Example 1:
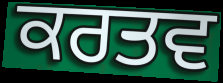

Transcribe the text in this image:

ਕਰਤਵ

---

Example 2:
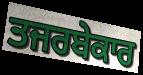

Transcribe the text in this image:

ਤਜਰਬੇਕਾਰ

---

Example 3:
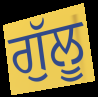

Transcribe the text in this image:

ਗੁੱਲੂ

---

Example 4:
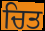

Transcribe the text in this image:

ਚਿਤ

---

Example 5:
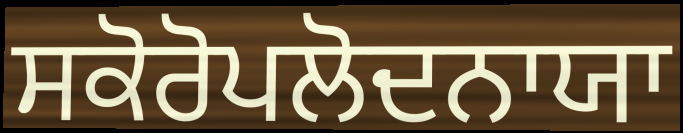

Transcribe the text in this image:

ਸਕੋਰੋਪਲੋਦਨਾਯਾ